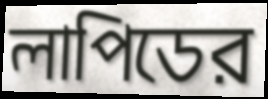
লাপিডের